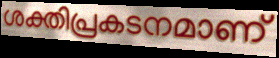
ശക്തിപ്രകടനമാണ്